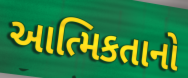
આત્મિકતાનો